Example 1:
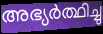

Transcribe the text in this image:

അഭ്യർത്ഥിച്ചു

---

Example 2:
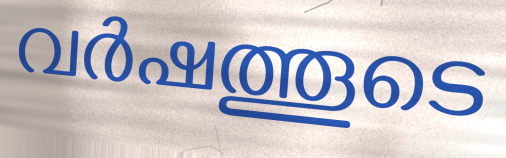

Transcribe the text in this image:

വർഷത്തൂടെ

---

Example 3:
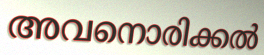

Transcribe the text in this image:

അവനൊരിക്കൽ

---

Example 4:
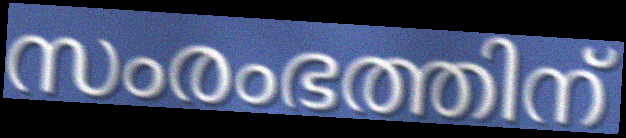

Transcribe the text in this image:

സംരംഭത്തിന്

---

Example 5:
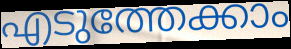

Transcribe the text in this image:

എടുത്തേക്കാം